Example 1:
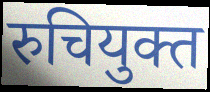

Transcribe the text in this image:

रुचियुक्त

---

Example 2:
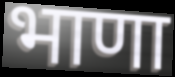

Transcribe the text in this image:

भाणा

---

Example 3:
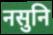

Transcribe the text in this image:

नसुनि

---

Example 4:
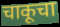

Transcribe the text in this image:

चाकूचा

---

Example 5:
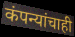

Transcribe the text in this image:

कंपन्यांचाही